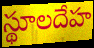
స్థూలదేహ